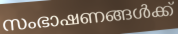
സംഭാഷണങ്ങൾക്ക്